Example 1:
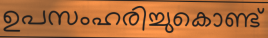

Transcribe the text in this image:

ഉപസംഹരിച്ചുകൊണ്ട്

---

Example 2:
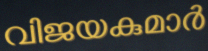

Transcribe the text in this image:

വിജയകുമാർ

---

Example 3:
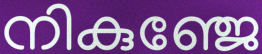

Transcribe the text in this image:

നികുഞ്ജേ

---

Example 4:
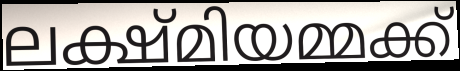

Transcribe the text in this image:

ലക്ഷ്മിയമ്മക്ക്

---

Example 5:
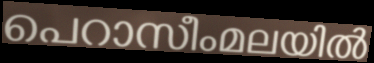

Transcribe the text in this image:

പെറാസീംമലയിൽ